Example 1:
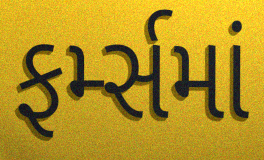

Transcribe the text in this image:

ફર્મ્સમાં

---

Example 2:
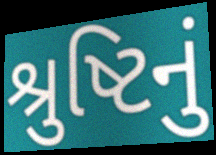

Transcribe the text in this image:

શ્રુષ્ટિનું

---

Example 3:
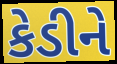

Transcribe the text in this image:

કેડીને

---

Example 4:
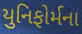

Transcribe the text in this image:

યુનિફોર્મના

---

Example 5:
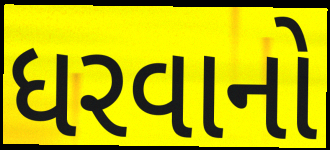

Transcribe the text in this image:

ધરવાનો